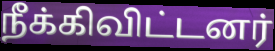
நீக்கிவிட்டனர்